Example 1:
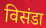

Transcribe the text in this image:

विसंडा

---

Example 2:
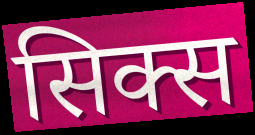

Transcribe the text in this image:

सिक्स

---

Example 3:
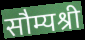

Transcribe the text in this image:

सौम्यश्री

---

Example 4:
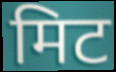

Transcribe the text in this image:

मिट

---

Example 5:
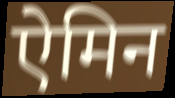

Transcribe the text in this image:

ऐमिन